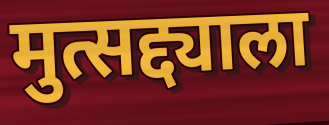
मुत्सद्द्याला